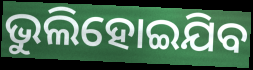
ଭୁଲିହୋଇଯିବ